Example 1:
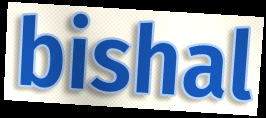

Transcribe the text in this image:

bishal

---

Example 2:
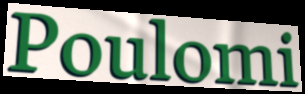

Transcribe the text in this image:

Poulomi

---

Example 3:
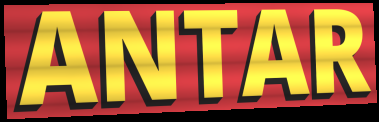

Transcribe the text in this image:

ANTAR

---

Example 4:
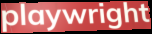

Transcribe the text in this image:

playwright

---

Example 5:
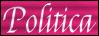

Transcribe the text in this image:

Politica